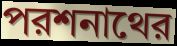
পরশনাথের